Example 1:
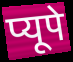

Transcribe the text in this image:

प्यूपे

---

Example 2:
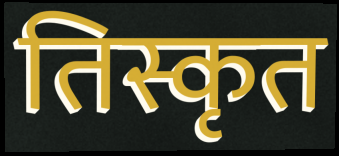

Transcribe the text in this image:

तिस्कृत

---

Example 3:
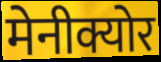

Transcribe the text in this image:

मेनीक्योर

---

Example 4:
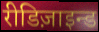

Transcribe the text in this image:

रीडिज़ाइन्ड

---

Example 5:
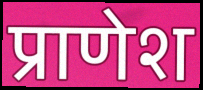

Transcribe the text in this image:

प्राणेश